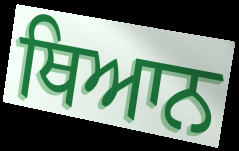
ਥਿਆਨ